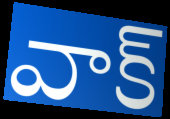
వాక్